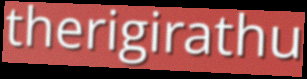
therigirathu